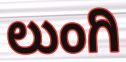
ಲುಂಗಿ